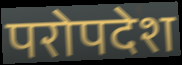
परोपदेश